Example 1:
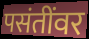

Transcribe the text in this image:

पसंतींवर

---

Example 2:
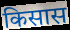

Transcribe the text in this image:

किसास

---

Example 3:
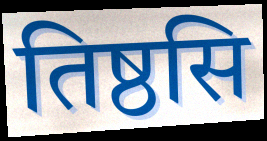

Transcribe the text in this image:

तिष्ठसि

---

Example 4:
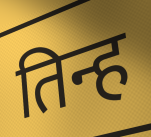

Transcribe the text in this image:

तिन्ह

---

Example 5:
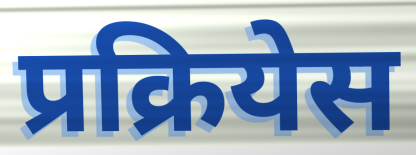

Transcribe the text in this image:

प्रक्रियेस